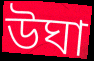
উঘা